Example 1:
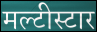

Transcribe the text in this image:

मल्टीस्टार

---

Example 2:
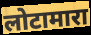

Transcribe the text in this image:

लोटामारा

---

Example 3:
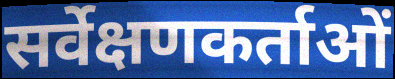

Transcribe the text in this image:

सर्वेक्षणकर्ताओं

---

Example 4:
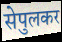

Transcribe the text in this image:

सेपुलकर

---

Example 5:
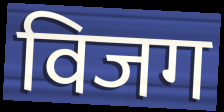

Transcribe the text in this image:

विजग